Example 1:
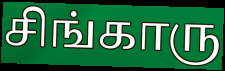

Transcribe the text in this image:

சிங்காரு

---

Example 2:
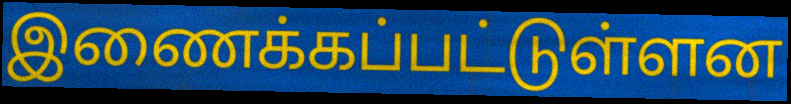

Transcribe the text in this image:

இணைக்கப்பட்டுள்ளன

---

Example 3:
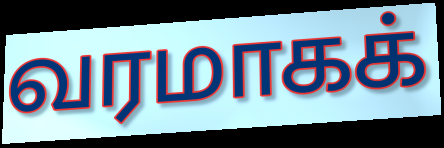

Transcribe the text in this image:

வரமாகக்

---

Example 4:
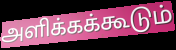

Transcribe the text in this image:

அளிக்கக்கூடும்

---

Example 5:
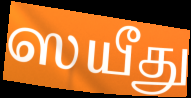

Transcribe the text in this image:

ஸயீது